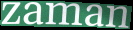
zaman